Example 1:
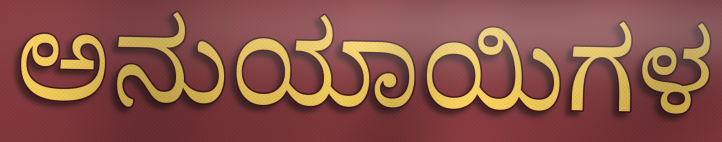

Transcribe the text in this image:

ಅನುಯಾಯಿಗಳ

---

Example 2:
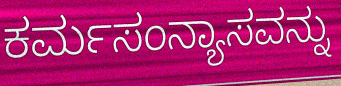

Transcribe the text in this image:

ಕರ್ಮಸಂನ್ಯಾಸವನ್ನು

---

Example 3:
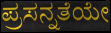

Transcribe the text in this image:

ಪ್ರಸನ್ನತೆಯೇ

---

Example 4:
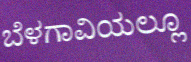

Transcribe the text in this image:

ಬೆಳಗಾವಿಯಲ್ಲೂ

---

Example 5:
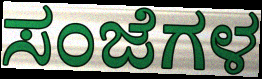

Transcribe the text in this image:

ಸಂಜೆಗಳ